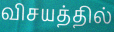
விசயத்தில்